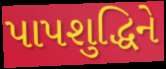
પાપશુદ્ધિને